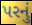
પરનું